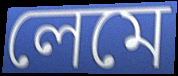
লেমে